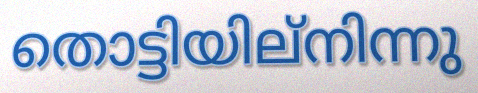
തൊട്ടിയില്നിന്നു